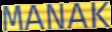
MANAK